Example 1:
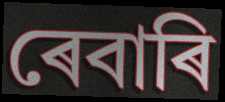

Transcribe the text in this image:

ৰেবাৰি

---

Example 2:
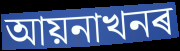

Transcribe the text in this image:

আয়নাখনৰ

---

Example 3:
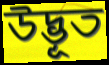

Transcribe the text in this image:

উদ্ভূত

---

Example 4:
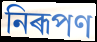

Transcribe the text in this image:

নিৰূপণ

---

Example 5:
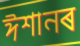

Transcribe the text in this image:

ঈশানৰ